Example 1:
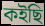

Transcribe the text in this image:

কইছি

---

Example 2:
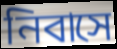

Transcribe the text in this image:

নিবাসে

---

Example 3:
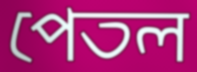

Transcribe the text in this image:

পেতল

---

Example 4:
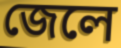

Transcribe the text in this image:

জেলে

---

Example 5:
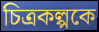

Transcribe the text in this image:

চিত্রকল্পকে